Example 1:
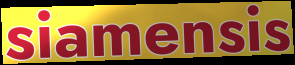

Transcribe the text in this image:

siamensis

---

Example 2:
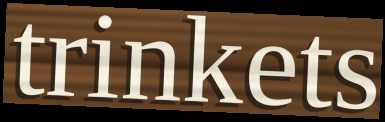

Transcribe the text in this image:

trinkets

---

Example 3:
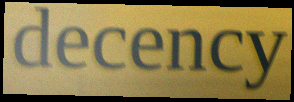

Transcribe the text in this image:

decency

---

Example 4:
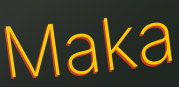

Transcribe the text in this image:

Maka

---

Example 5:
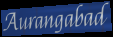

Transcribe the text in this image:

Aurangabad